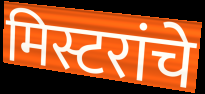
मिस्टरांचे